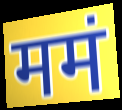
ममं